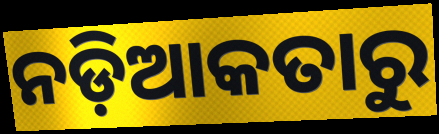
ନଡ଼ିଆକତାରୁ